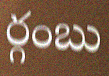
ర్గంబు